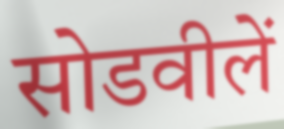
सोडवीलें